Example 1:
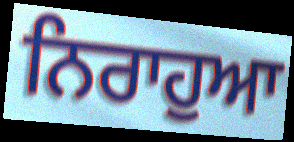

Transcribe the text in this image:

ਨਿਰਾਹੁਆ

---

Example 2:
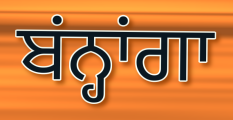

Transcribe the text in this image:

ਬਂਨ੍ਹਾਂਗਾ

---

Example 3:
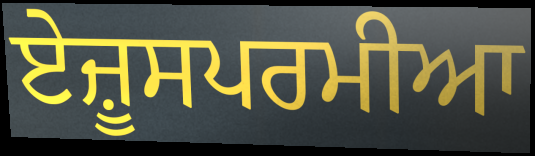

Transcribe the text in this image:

ਏਜ਼ੂਸਪਰਮੀਆ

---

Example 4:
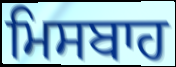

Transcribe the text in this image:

ਮਿਸਬਾਹ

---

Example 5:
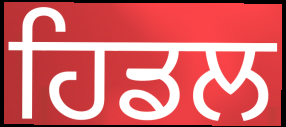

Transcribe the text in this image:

ਹਿਡਲ